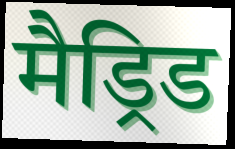
मैड्रिड